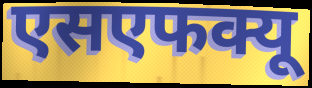
एसएफक्यू